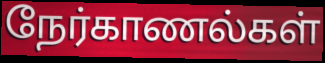
நேர்காணல்கள்